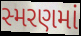
સ્મરણમાં